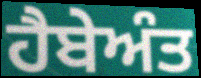
ਹੈਬੇਅੰਤ